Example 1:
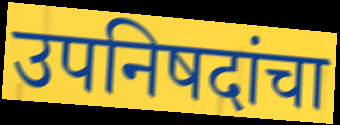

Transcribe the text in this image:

उपनिषदांचा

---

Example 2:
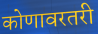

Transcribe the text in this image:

कोणावरतरी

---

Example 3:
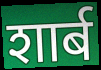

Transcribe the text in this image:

शार्ब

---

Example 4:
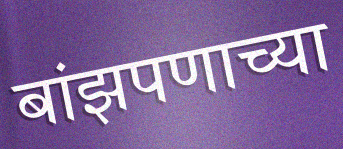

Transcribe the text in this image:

बांझपणाच्या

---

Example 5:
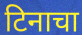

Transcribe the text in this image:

टिनाचा